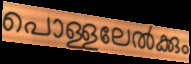
പൊള്ളലേൽക്കും